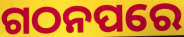
ଗଠନପରେ